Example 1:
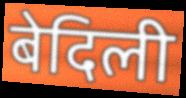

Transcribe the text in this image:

बेदिली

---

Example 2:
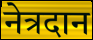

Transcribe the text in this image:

नेत्रदान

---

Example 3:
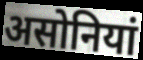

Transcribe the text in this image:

असोनियां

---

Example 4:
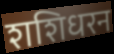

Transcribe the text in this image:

शशिधरन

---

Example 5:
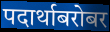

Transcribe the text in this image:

पदार्थाबरोबर